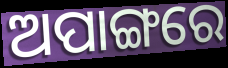
ଅପାଙ୍ଗରେ